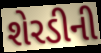
શેરડીની